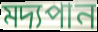
মদ্যপান